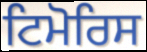
ਟਿਮੋਰਿਸ